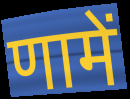
णामें